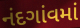
નંદગાંવમાં